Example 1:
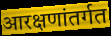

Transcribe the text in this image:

आरक्षणांतर्गत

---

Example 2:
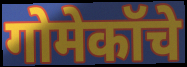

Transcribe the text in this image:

गोमेकॉचे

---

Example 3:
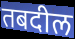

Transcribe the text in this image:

तबदील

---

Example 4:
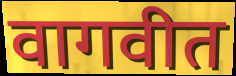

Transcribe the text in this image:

वागवीत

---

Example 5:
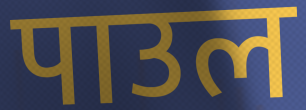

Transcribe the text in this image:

पाउल